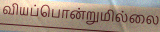
வியப்பொன்றுமில்லை